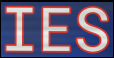
IES